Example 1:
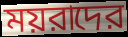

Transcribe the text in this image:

ময়রাদের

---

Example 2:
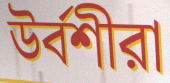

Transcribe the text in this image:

উর্বশীরা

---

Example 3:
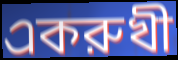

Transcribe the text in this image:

একরুখী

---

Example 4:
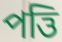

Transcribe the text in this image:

পত্তি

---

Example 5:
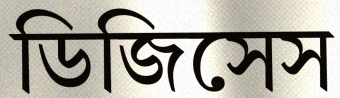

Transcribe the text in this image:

ডিজিসেস